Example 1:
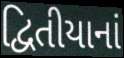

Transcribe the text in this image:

દ્વિતીયાનાં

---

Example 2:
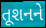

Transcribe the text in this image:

તૂશનને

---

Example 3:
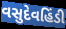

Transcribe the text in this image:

વસુદેવહિંડી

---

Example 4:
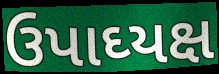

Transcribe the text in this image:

ઉપાઘ્યક્ષ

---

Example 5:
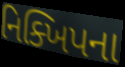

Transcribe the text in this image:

નિક્ખિપના